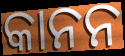
କାନନ